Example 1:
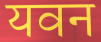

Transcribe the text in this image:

यवन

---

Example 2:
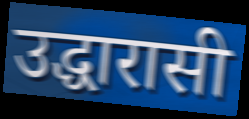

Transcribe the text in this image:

उद्धारासी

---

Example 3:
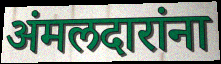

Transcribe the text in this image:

अंमलदारांना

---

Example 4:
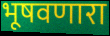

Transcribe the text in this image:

भूषवणारा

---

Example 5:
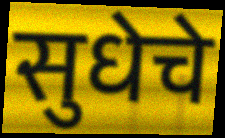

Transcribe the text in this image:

सुधेचे